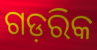
ଗଡ଼ରିକ